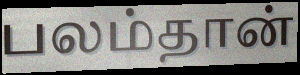
பலம்தான்